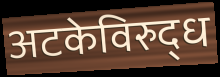
अटकेविरुद्ध